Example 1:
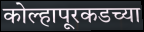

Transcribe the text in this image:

कोल्हापूरकडच्या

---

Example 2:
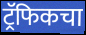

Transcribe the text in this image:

ट्रॅफिकचा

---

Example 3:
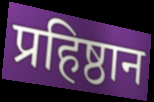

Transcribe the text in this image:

प्रहिष्ठान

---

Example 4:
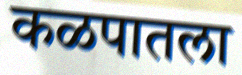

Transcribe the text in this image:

कळपातला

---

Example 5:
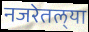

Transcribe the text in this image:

नजरेतल्या